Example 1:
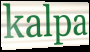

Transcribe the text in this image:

kalpa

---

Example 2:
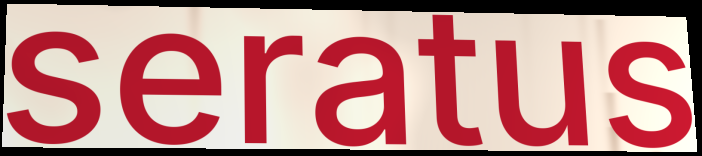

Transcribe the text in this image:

seratus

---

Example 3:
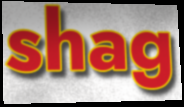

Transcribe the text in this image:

shag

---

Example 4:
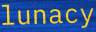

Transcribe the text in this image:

lunacy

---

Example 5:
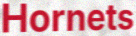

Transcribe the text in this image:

Hornets